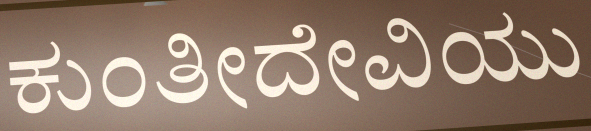
ಕುಂತೀದೇವಿಯು